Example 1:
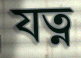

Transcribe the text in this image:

যত্ন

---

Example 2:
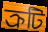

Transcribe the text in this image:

ক্রটি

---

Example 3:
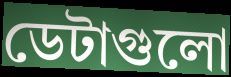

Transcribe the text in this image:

ডেটাগুলো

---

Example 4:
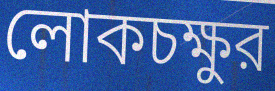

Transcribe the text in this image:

লোকচক্ষুর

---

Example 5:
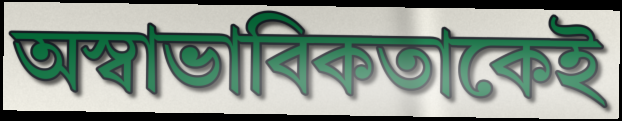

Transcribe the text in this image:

অস্বাভাবিকতাকেই